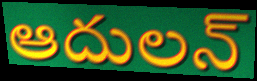
ఆదులన్